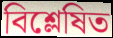
বিশ্লেষিত